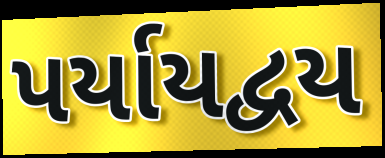
પર્યાયદ્વય